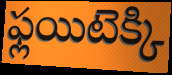
ఫ్లయిటెక్కి